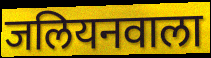
जलियनवाला